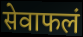
सेवाफलं